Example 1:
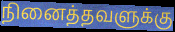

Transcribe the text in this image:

நினைத்தவளுக்கு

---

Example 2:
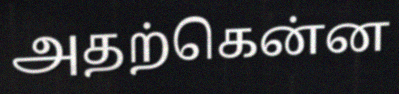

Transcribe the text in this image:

அதற்கென்ன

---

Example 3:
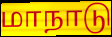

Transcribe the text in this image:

மாநாடு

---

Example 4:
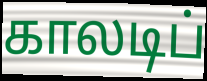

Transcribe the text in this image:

காலடிப்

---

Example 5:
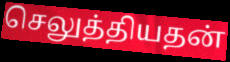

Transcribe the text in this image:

செலுத்தியதன்